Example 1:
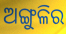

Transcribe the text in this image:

ଅଙ୍ଗୁଳିର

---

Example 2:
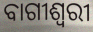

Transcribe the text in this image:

ବାଗୀଶ୍ୱରୀ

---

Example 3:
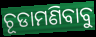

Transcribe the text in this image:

ଚୂଡାମଣିବାବୁ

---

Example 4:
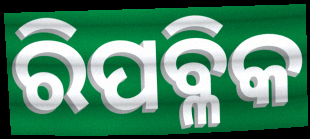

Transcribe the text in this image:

ରିପବ୍ଳିକ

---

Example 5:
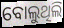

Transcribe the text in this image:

ବୋଲୁଥିଲି